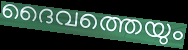
ദൈവത്തെയും